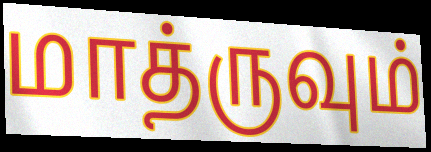
மாத்ருவும்